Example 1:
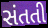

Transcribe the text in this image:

સંતતી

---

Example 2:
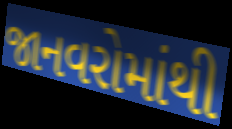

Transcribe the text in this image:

જાનવરોમાંથી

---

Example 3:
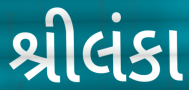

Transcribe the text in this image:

શ્રીલંકા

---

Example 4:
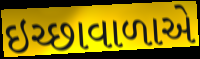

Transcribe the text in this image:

ઇચ્છાવાળાએ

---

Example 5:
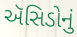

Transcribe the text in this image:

ઍસિડોનું